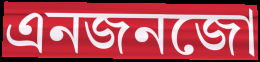
এনজনজো